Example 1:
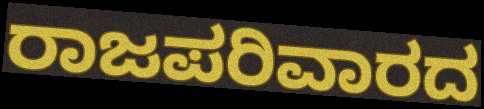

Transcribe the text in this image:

ರಾಜಪರಿವಾರದ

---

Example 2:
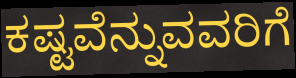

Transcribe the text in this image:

ಕಷ್ಟವೆನ್ನುವವರಿಗೆ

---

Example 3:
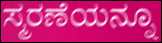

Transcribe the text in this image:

ಸ್ಮರಣೆಯನ್ನೂ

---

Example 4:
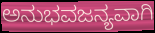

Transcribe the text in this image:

ಅನುಭವಜನ್ಯವಾಗಿ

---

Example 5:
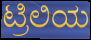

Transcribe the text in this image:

ಟ್ರಿಲಿಯ